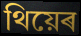
থিয়েৰ